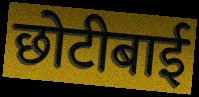
छोटीबाई